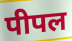
पीपल